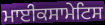
ਮਾਈਕਸਾਮੇਟਿਸ